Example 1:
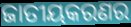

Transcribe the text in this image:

ଜାତୀୟକରଣର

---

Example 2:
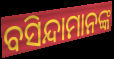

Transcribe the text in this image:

ବସିନ୍ଦାମାନଙ୍କ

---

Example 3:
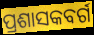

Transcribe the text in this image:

ପ୍ରଶାସକବର୍ଗ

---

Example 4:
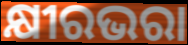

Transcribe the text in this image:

କ୍ଷୀରଭରା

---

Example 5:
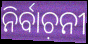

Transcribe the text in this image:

ନିର୍ବାଚ଼ନୀ